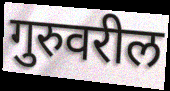
गुरुवरील